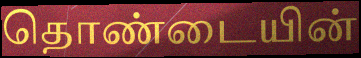
தொண்டையின்